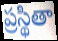
ప్రస్థితా